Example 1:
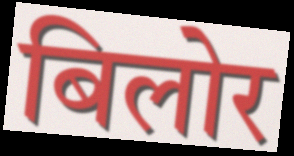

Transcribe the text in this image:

बिलोर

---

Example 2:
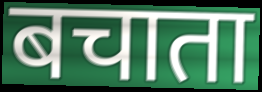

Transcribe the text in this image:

बचाता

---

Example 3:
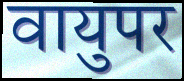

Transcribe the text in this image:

वायुपर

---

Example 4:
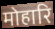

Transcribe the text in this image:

मोहारि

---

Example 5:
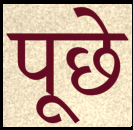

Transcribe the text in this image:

पूछे